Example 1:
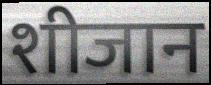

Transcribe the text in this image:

शीजान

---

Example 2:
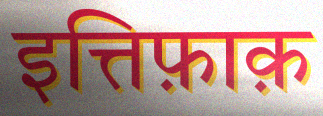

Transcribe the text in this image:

इत्तिफ़ाक़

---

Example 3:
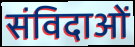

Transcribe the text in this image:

संविदाओं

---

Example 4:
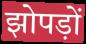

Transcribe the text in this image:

झोपड़ों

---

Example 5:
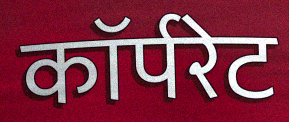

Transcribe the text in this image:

कॉर्परेट